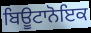
ਬਿਊਟਾਨੋਇਕ